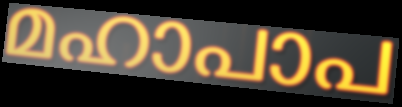
മഹാപാപ